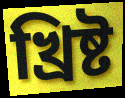
খ্রিষ্ট